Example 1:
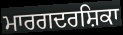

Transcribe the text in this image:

ਮਾਰਗਦਰਸ਼ਿਕਾ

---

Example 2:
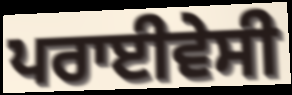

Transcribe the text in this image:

ਪਰਾਈਵੇਸੀ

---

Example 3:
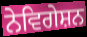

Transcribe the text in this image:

ਨੇਵਿਗੇਸ਼ਨ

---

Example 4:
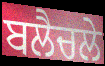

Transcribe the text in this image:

ਬਲੈਚਲੇ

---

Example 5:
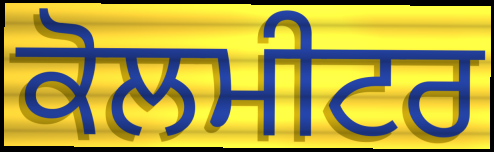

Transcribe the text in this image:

ਕੋਲਮੀਟਰ